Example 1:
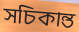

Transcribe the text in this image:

সচিকান্ত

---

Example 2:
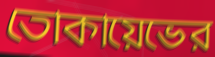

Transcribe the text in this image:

তোকায়েভের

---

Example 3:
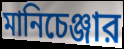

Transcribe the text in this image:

মানিচেঞ্জার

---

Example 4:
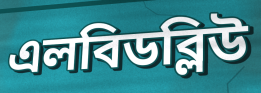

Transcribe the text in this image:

এলবিডব্লিউ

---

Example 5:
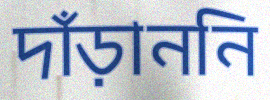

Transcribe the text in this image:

দাঁড়াননি